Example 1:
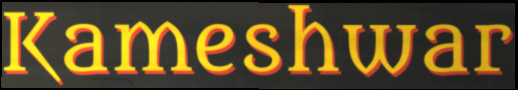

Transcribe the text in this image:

Kameshwar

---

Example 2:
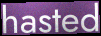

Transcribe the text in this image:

hasted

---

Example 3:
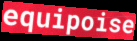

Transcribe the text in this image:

equipoise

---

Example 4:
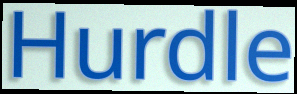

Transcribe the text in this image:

Hurdle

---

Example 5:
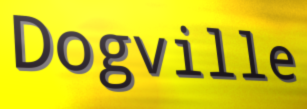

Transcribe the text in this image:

Dogville